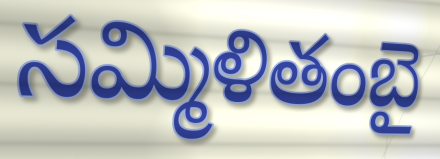
సమ్మిళితంబై